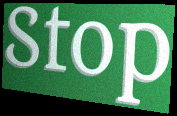
Stop